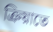
ক্রিয়াতে